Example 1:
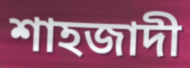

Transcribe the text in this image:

শাহজাদী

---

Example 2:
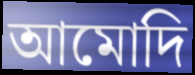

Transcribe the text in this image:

আমোদি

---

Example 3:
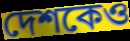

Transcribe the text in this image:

দেশকেও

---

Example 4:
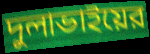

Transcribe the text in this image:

দুলাভাইয়ের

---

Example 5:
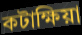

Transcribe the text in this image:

কটাক্ষিয়া